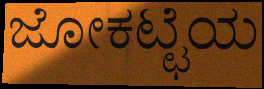
ಜೋಕಟ್ಟೆಯ